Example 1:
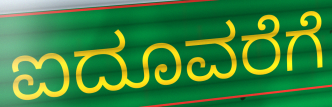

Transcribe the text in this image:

ಐದೂವರೆಗೆ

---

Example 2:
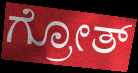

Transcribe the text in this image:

ಗ್ರೋತ್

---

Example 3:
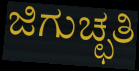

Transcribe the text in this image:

ಜಿಗುಚ್ಛತಿ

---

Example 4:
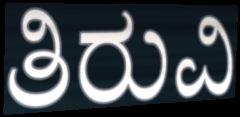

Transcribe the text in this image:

ತಿರುವಿ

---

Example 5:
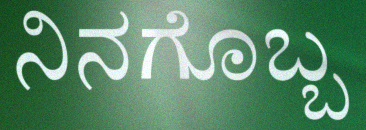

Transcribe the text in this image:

ನಿನಗೊಬ್ಬ